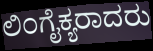
ಲಿಂಗೈಕ್ಯರಾದರು